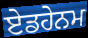
ਏਡਹੇਨਮ